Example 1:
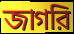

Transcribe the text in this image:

জাগরি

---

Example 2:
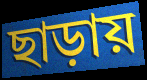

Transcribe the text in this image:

ছাড়ায়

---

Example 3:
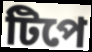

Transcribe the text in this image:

টিপে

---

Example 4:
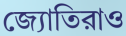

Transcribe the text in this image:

জ্যোতিরাও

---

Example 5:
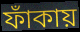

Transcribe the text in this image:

ফাঁকায়